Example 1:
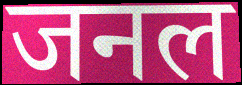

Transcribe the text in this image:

जनल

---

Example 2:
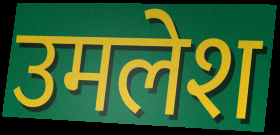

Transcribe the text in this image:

उमलेश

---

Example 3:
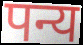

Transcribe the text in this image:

पन्य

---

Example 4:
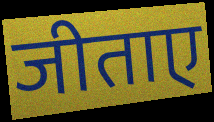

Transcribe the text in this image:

जीताए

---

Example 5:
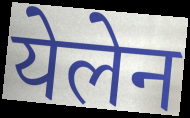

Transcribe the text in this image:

येलेन